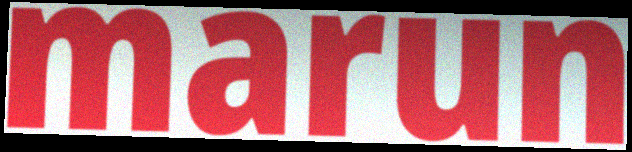
marun